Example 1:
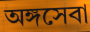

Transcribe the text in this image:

অঙ্গসেবা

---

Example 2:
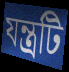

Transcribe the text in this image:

যন্ত্রটি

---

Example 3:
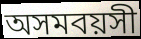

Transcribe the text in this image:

অসমবয়সী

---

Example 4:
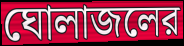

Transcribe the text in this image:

ঘোলাজলের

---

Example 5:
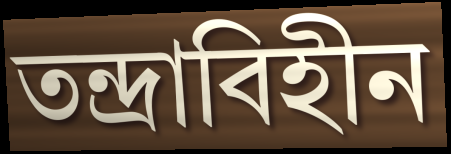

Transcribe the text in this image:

তন্দ্রাবিহীন